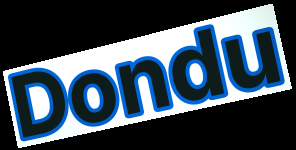
Dondu